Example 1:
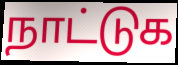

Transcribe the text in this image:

நாட்டுக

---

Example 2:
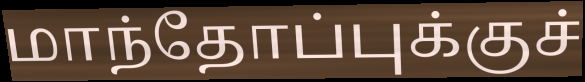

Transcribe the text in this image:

மாந்தோப்புக்குச்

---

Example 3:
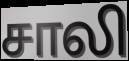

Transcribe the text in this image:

சாலி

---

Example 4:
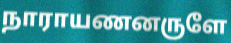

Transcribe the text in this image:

நாராயணனருளே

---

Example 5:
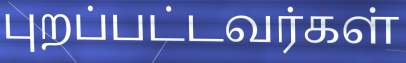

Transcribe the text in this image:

புறப்பட்டவர்கள்